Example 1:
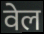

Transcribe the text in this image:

वेल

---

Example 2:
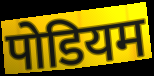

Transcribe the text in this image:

पोडियम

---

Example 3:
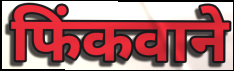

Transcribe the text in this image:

फिंकवाने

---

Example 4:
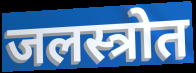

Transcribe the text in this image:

जलस्त्रोत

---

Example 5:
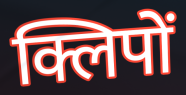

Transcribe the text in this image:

क्लिपों